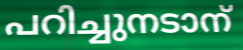
പറിച്ചുനടാന്